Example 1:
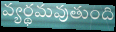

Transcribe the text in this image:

వ్యర్థమవుతుంది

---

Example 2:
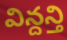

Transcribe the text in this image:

విన్దన్తి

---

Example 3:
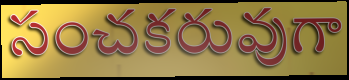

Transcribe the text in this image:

సంచకరువుగా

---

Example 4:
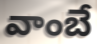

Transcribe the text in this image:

వాంబే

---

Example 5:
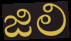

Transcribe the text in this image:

జిలి